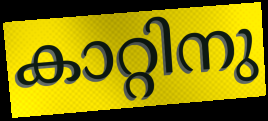
കാറ്റിനു